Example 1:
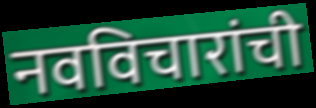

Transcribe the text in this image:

नवविचारांची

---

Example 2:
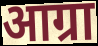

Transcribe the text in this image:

आग्रा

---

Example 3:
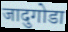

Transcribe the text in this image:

जादुगोडा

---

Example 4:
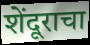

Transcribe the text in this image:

शेंदूराचा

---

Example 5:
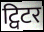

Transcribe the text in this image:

ट्विटर